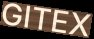
GITEX